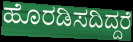
ಹೊರಡಿಸದಿದ್ದರೆ